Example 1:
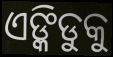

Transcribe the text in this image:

ଏଙ୍କିଡୁକୁ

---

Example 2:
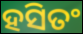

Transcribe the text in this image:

ହସିତଂ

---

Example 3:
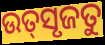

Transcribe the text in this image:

ଉତ୍‌ସୃଜତୁ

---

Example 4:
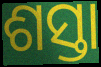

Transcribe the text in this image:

ଶସ୍ତା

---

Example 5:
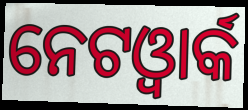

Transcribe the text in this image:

ନେଟଓ୍ବାର୍କ